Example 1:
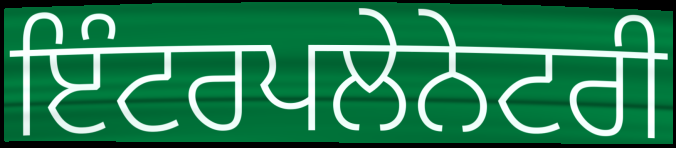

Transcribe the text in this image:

ਇੰਟਰਪਲੇਨੇਟਰੀ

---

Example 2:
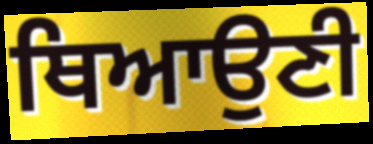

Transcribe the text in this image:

ਥਿਆਉਣੀ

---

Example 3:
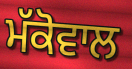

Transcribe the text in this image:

ਮੱਕੋਵਾਲ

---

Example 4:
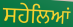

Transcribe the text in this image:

ਸਹੇਲਿਆਂ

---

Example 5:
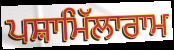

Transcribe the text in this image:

ਪਸ਼ਾਮਿੱਲਾਰਾਮ